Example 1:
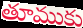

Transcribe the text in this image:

తూముకు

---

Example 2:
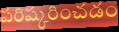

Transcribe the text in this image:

పరిష్కరించడం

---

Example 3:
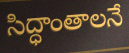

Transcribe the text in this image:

సిద్ధాంతాలనే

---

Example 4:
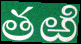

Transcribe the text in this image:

తఱి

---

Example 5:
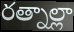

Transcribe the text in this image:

రత్నాల్లా